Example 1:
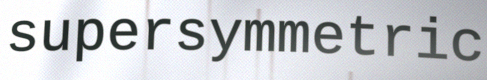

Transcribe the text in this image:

supersymmetric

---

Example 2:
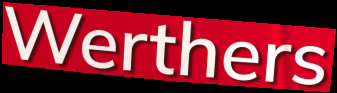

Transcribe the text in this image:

Werthers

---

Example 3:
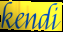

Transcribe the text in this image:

kendi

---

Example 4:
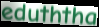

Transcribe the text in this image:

eduththa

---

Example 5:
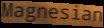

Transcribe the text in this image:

Magnesian